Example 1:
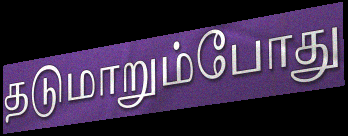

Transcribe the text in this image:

தடுமாறும்போது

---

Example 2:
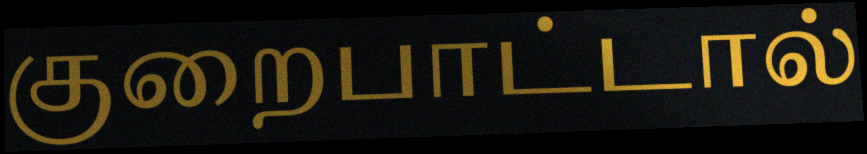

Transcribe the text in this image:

குறைபாட்டால்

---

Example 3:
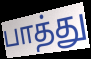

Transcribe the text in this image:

பாத்து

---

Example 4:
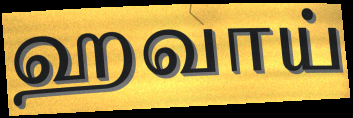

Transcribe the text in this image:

ஹவாய்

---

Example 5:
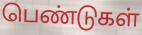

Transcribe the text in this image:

பெண்டுகள்